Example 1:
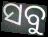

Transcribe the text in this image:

ସବୁ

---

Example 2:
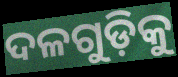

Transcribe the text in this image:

ଦଳଗୁଡ଼ିକୁ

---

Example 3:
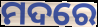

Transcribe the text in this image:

ମଦରେ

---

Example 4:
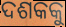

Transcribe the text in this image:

ଦଶକକୁ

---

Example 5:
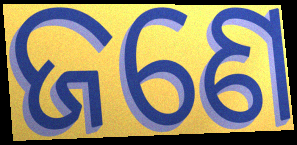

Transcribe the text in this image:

ଜଣେ